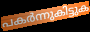
പകർന്നുകിട്ടുക